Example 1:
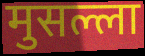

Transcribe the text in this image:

मुसल्ला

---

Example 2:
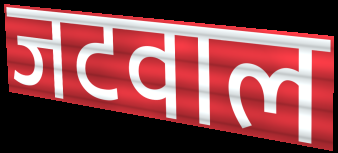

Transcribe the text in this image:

जटवाल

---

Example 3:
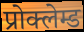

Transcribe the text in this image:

प्रोक्लेम्ड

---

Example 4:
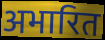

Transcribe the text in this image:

अभारित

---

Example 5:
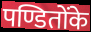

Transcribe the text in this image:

पण्डितोंके